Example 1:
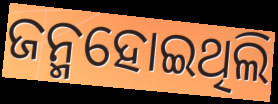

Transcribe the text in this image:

ଜନ୍ମହୋଇଥିଲି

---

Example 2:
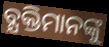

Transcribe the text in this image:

ବ୍ଯକ୍ତିମାନଙ୍କୁ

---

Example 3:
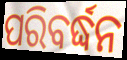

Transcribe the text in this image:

ପରିବର୍ଦ୍ଧନ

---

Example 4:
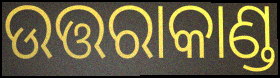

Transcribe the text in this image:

ଉତ୍ତରାକାଣ୍ଡ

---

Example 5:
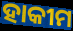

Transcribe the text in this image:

ହାକୀମ